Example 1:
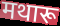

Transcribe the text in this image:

मथारू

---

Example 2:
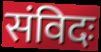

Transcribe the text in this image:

संविदः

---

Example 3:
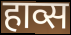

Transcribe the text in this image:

हाव्स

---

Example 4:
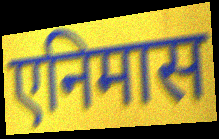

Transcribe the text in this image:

एनिमास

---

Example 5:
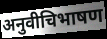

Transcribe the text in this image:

अनुवीचिभाषण